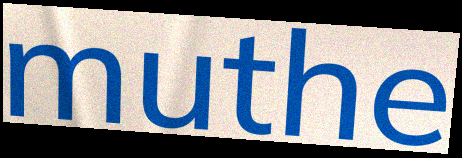
muthe